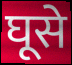
घूसे